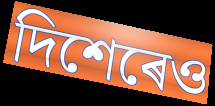
দিশেৰেও